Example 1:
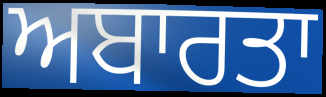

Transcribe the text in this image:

ਅਬਾਰਤਾ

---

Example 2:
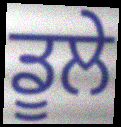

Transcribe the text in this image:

ਡੂਲੇ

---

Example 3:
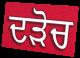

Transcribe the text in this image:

ਦੜੋਚ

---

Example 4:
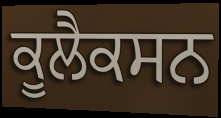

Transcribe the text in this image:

ਕੂਲੈਕਸਨ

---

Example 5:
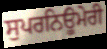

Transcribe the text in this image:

ਸੁਪਰਨਿਊਮੇਰੀ